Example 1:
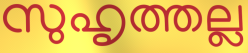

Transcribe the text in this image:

സുഹൃത്തല്ല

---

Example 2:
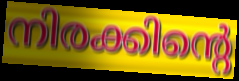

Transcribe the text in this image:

നിരക്കിന്റെ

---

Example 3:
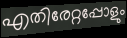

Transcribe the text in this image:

എതിരേറ്റപ്പോളും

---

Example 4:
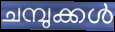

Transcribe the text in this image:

ചമ്പുക്കൾ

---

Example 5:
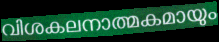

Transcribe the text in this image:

വിശകലനാത്മകമായും